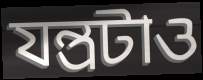
যন্ত্রটাও